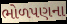
ભોળપણના